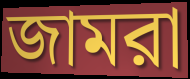
জামরা